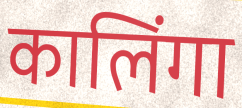
कालिंगा